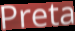
Preta